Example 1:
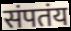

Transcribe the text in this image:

संपतंय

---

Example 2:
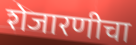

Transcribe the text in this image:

शेजारणीचा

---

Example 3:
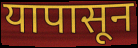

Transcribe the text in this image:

यापासून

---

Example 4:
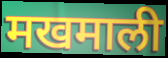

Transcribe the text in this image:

मखमाली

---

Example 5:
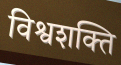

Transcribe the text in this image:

विश्वशक्ति